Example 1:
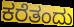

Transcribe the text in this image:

ಕರೆತಂದು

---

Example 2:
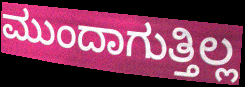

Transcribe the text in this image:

ಮುಂದಾಗುತ್ತಿಲ್ಲ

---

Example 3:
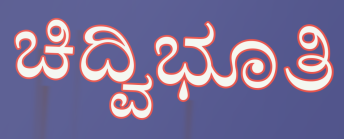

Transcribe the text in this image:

ಚಿದ್ವಿಭೂತಿ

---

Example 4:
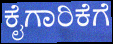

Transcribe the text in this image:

ಕೈಗಾರಿಕೆಗೆ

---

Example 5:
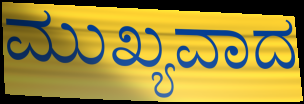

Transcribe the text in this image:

ಮುಖ್ಯವಾದ